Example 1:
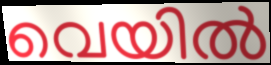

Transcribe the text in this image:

വെയിൽ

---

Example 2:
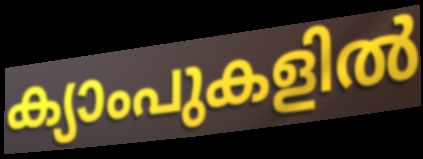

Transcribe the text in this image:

ക്യാംപുകളിൽ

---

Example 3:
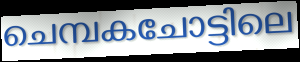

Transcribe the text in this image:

ചെമ്പകചോട്ടിലെ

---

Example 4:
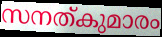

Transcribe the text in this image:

സനത്കുമാരം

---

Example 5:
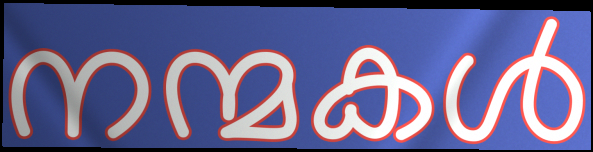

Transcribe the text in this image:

നന്മകൾ